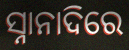
ସ୍ନାନାଦିରେ